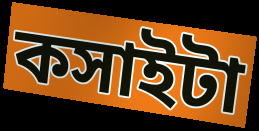
কসাইটা